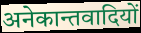
अनेकान्तवादियों